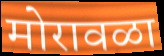
मोरावळा